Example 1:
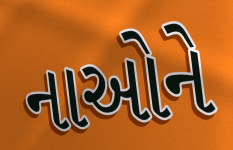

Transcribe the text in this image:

નાઓને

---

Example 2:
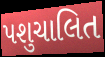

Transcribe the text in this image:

પશુચાલિત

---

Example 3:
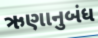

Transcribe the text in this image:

ઋણાનુબંધ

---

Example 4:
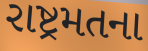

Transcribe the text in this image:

રાષ્ટ્રમતના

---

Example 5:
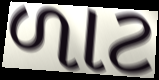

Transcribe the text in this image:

ળાટ